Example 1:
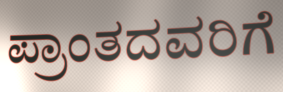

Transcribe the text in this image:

ಪ್ರಾಂತದವರಿಗೆ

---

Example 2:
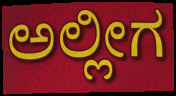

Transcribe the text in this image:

ಅಲ್ಲೀಗ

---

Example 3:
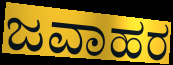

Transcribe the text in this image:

ಜವಾಹರ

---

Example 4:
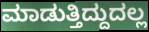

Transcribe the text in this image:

ಮಾಡುತ್ತಿದ್ದುದಲ್ಲ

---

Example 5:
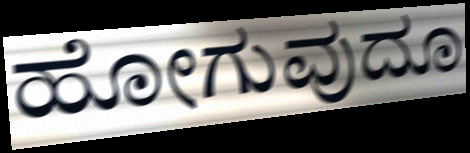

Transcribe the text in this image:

ಹೋಗುವುದೂ